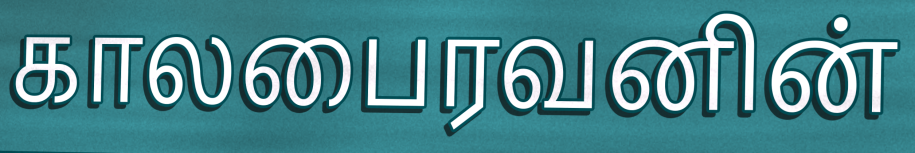
காலபைரவனின்